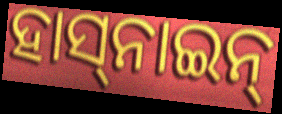
ହାସ୍‌ନାଇନ୍